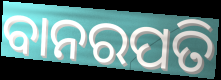
ବାନରପତି